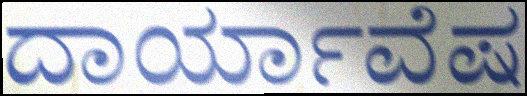
ದಾರ್ಯಾವೆಷ